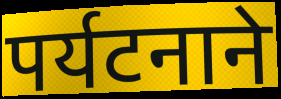
पर्यटनाने